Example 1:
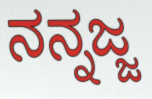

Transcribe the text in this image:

ನನ್ನಜ್ಜ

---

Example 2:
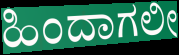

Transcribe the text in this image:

ಹಿಂದಾಗಲೀ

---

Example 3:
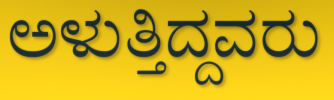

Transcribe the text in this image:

ಅಳುತ್ತಿದ್ದವರು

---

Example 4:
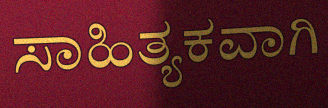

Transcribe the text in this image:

ಸಾಹಿತ್ಯಕವಾಗಿ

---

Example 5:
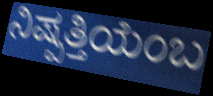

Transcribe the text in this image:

ನಿಷ್ಪತ್ತಿಯೆಂಬ